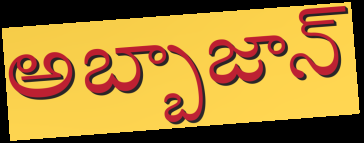
అబ్బాజాన్